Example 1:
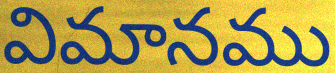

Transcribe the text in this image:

విమానము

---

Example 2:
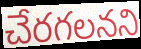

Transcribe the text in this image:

చేరగలనని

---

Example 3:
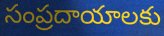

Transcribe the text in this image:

సంప్రదాయాలకు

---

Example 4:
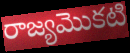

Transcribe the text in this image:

రాజ్యమొకటి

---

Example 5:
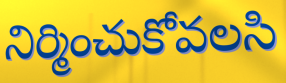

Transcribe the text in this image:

నిర్మించుకోవలసి